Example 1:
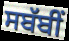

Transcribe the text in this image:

ਸਬੱਬੀਂ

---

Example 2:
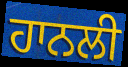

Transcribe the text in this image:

ਹਾਨਲੀ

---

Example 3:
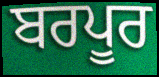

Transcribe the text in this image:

ਬਰਪੂਰ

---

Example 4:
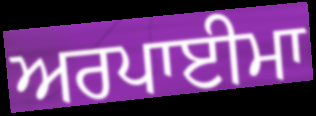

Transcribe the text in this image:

ਅਰਪਾਈਮਾ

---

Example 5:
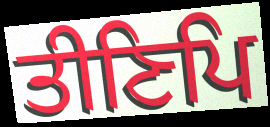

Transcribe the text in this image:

ਤੀਣਿਪਿ